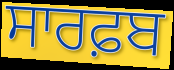
ਸਾਰਫ਼ਬ